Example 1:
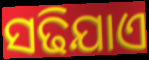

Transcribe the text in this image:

ସଢିଯାଏ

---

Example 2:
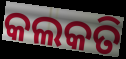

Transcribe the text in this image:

କଲକତି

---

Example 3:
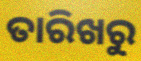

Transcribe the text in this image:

ତାରିଖରୁ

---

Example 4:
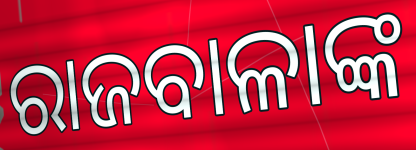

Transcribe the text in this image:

ରାଜବାଳାଙ୍କ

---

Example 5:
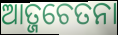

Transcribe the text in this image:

ଆତ୍ଜଚେତନା